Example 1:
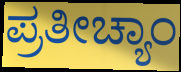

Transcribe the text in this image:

ಪ್ರತೀಚ್ಯಾಂ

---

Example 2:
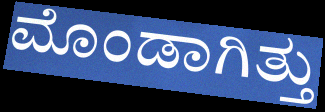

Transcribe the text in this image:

ಮೊಂಡಾಗಿತ್ತು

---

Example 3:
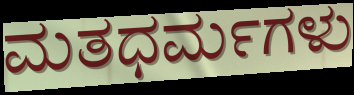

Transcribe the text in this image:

ಮತಧರ್ಮಗಳು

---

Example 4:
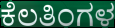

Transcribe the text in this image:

ಕೆಲತಿಂಗಳ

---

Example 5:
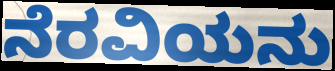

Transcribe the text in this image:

ನೆರವಿಯನು